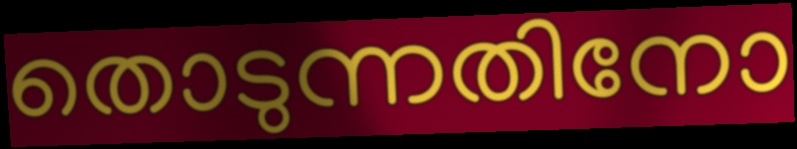
തൊടുന്നതിനോ